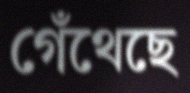
গেঁথেছে